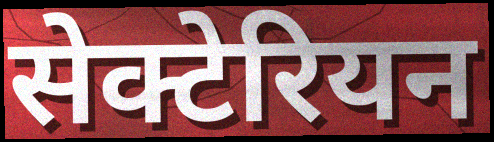
सेक्टेरियन